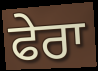
ਫੇਰਾ